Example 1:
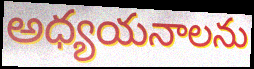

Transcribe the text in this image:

అధ్యయనాలను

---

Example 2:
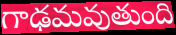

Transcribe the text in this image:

గాఢమవుతుంది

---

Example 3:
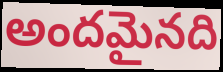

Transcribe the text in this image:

అందమైనది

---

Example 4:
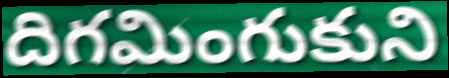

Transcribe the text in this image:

దిగమింగుకుని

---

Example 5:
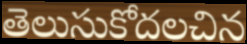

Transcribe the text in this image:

తెలుసుకోదలచిన